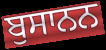
ਬੁਸਾਨਨ